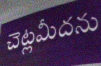
చెట్లమీదను